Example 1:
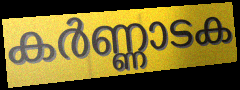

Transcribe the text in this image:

കർണ്ണാടക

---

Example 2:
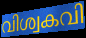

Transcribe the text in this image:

വിശ്വകവി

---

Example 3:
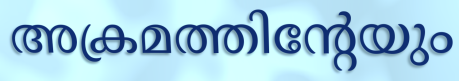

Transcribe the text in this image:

അക്രമത്തിന്റേയും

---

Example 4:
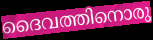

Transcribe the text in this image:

ദൈവത്തിനൊരു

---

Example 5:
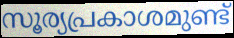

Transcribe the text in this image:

സൂര്യപ്രകാശമുണ്ട്